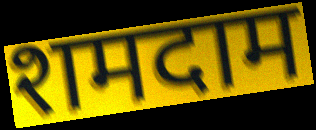
शमदाम